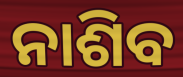
ନାଶିବ